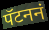
पॅटननं